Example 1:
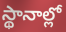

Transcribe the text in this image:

స్థానాల్లో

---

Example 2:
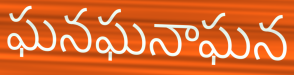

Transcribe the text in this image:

ఘనఘనాఘన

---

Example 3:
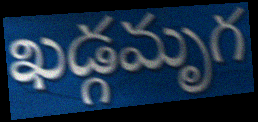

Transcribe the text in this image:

ఖడ్గమృగ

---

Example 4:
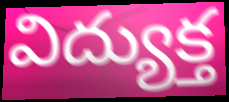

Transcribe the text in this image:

విద్యుక్త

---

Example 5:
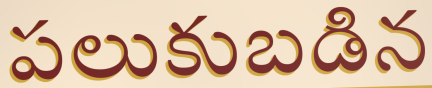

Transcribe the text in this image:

పలుకుబడిన